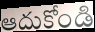
ఆదుకోండి